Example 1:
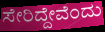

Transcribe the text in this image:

ಸೇರಿದ್ದೇವೆಂದು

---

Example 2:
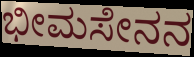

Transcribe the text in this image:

ಭೀಮಸೇನನ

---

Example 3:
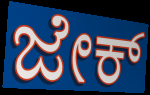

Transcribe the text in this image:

ಜೇಕ್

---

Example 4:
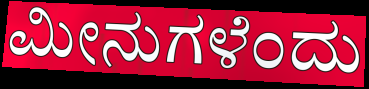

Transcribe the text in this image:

ಮೀನುಗಳೆಂದು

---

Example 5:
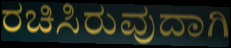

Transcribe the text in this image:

ರಚಿಸಿರುವುದಾಗಿ